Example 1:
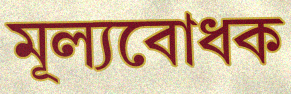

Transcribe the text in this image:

মূল্যবোধক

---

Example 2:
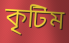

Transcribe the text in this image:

কৃটিম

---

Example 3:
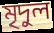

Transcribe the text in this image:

মৃদুল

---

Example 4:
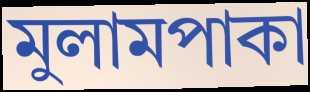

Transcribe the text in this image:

মুলামপাকা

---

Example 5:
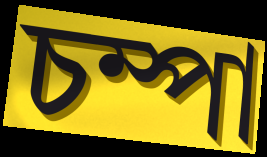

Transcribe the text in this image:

চম্পা